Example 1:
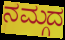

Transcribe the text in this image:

ನಮ್ಗದ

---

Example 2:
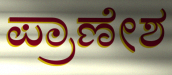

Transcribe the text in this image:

ಪ್ರಾಣೇಶ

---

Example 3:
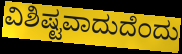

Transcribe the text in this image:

ವಿಶಿಷ್ಟವಾದುದೆಂದು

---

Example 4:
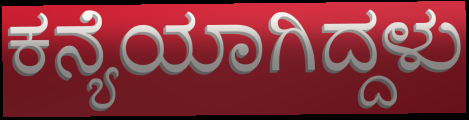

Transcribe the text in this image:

ಕನ್ಯೆಯಾಗಿದ್ದಳು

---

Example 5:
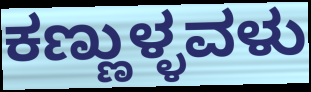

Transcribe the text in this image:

ಕಣ್ಣುಳ್ಳವಳು